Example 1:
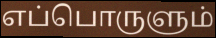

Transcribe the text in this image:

எப்பொருளும்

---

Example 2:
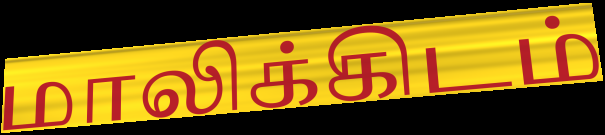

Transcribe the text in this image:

மாலிக்கிடம்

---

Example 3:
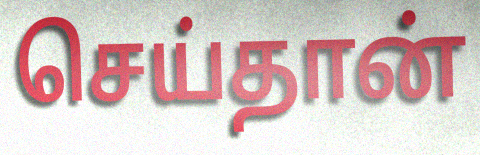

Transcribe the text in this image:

செய்தான்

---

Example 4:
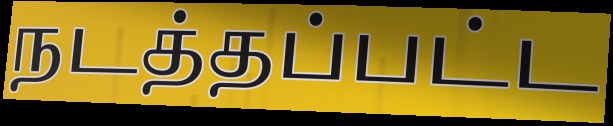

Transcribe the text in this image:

நடத்தப்பட்ட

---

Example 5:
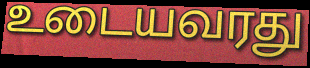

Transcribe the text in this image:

உடையவரது